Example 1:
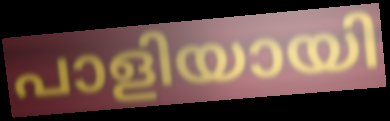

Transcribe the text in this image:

പാളിയായി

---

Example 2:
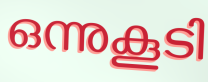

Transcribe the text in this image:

ഒന്നുകൂടി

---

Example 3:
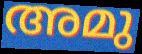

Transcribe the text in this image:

അമു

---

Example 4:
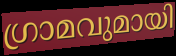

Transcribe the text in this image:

ഗ്രാമവുമായി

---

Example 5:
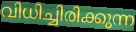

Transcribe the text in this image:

വിധിച്ചിരിക്കുന്ന